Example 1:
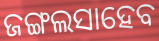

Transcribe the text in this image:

ଜଙ୍ଗଲସାହେବ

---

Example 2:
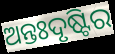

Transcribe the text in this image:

ଅନ୍ତଃଦୃଷ୍ଟିର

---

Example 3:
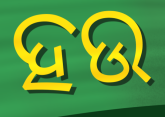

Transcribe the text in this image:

ହଉ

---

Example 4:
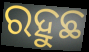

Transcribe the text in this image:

ରହୁଛ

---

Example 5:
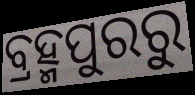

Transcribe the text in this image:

ବ୍ରହ୍ମପୁରରୁ